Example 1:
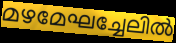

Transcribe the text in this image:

മഴമേഘച്ചേലിൽ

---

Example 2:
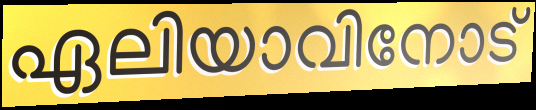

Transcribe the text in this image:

ഏലിയാവിനോട്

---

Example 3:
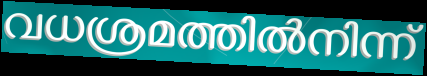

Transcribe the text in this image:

വധശ്രമത്തിൽനിന്ന്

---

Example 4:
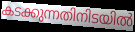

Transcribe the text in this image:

കടക്കുന്നതിനിടയിൽ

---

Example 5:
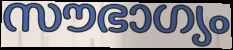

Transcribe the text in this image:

സൗഭാഗ്യം